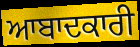
ਆਬਾਦਕਾਰੀ